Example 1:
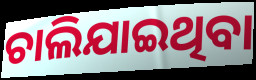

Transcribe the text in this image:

ଚାଲିଯାଇଥିବା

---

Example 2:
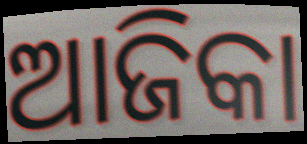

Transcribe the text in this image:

ଆଜିକା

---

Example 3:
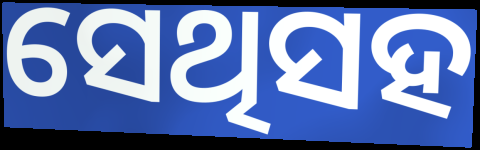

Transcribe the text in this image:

ସେଥିସହ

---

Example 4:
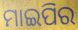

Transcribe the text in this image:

ମାଇପିର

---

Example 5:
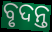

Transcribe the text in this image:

ବୃଦନ୍ତ